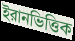
ইরানভিত্তিক